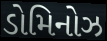
ડોમિનોઝ